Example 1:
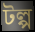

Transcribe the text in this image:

টল্প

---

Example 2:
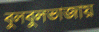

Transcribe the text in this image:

বুলবুলভাজায়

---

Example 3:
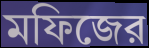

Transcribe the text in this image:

মফিজের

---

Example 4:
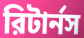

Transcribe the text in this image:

রিটার্নস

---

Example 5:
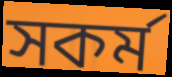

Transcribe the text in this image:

সকর্ম